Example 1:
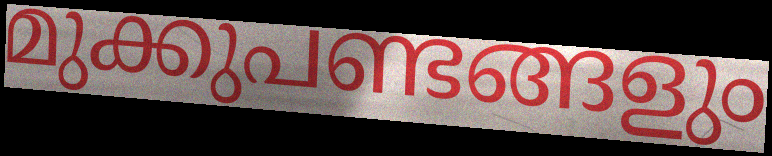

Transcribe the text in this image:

മുക്കുപണ്ടങ്ങളും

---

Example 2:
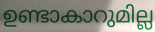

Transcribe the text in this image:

ഉണ്ടാകാറുമില്ല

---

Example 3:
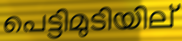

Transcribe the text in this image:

പെട്ടിമുടിയില്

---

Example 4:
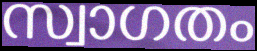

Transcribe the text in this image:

സ്വാഗതം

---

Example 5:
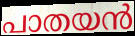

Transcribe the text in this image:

പാതയൻ